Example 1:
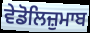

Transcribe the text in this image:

ਵੇਡੋਲਿਜ਼ੁਮਾਬ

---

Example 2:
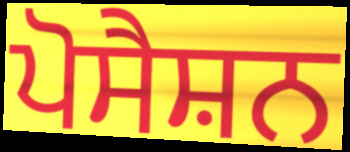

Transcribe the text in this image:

ਪੋਸੈਸ਼ਨ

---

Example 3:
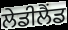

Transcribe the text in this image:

ਲੇਡੀਲੈਂਡ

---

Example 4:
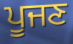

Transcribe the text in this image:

ਪੂਜਣ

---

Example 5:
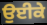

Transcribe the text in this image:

ਉਈਕੇ